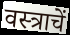
वस्त्राचें